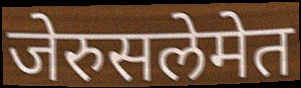
जेरुसलेमेत